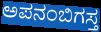
ಅಪನಂಬಿಗಸ್ತ